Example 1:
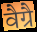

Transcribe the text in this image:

वैग्रै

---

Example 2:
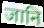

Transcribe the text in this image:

जानि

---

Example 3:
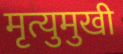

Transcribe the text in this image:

मृत्युमुखी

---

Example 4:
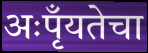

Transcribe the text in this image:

अःपृँयतेचा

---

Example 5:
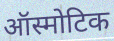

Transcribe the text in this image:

ऑस्मोटिक